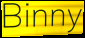
Binny